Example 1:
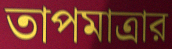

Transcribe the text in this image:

তাপমাত্রার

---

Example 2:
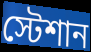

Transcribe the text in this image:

স্টেশান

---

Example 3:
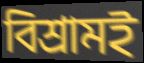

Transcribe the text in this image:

বিশ্রামই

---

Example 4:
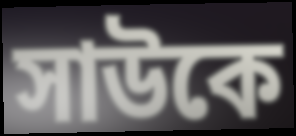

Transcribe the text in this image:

সাউকে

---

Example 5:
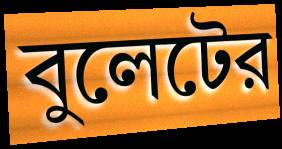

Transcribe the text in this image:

বুলেটের